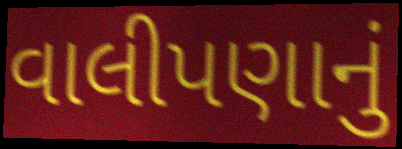
વાલીપણાનું